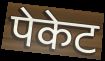
पेकेट